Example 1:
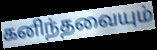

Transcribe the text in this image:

கனிந்தவையும்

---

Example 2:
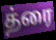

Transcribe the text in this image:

த்ரை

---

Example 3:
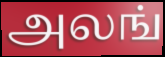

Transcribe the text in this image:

அலங்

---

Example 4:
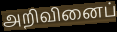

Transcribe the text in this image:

அறிவினைப்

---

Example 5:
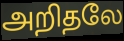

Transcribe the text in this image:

அறிதலே